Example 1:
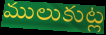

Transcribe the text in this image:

ములుకుట్ల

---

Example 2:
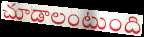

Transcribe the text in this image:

చూడాలంటుంది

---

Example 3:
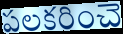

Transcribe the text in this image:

పలకరించె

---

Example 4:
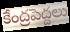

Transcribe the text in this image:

కేంద్రపెద్దలు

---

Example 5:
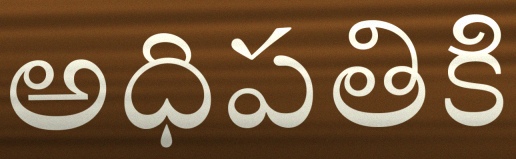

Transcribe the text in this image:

అధిపతికి